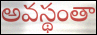
అవస్థంతా